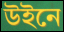
উইনে